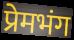
प्रेमभंग